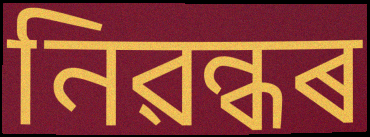
নিৱন্ধৰ